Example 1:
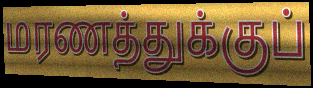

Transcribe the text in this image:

மரணத்துக்குப்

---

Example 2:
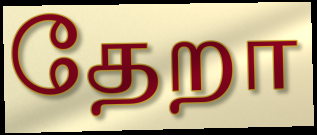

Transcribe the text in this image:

தேறா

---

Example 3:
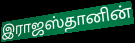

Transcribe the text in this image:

இராஜஸ்தானின்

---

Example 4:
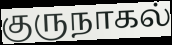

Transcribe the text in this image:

குருநாகல்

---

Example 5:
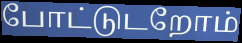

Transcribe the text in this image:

போட்டுடறோம்